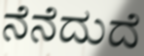
ನೆನೆದುದೆ